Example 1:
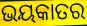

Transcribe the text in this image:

ଭୟକାତର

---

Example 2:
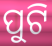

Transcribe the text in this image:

ପୁଟି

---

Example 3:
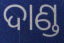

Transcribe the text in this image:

ଦାଣ୍ଡ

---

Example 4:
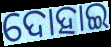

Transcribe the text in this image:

ଦୋହାଇ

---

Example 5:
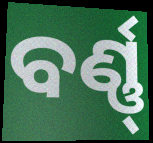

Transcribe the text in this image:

ବର୍ଣ୍ଣ୍